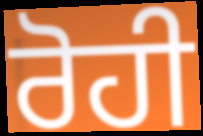
ਰੋਹੀ